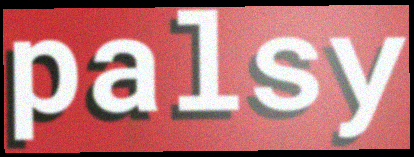
palsy